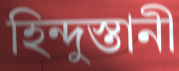
হিন্দুস্তানী